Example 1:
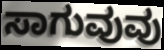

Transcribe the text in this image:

ಸಾಗುವುವು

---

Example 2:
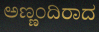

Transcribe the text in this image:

ಅಣ್ಣಂದಿರಾದ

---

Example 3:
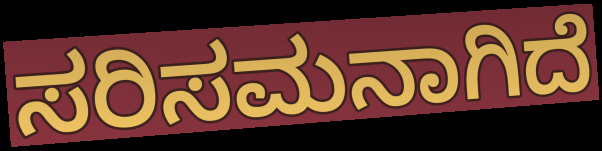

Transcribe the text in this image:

ಸರಿಸಮನಾಗಿದೆ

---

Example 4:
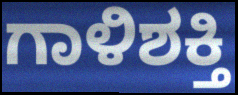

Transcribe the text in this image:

ಗಾಳಿಶಕ್ತಿ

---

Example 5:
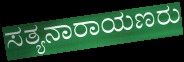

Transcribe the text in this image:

ಸತ್ಯನಾರಾಯಣರು